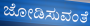
ಜೋಡಿಸುವಂತೆ